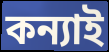
কন্যাই